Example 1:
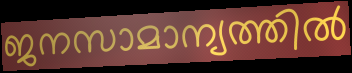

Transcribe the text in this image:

ജനസാമാന്യത്തിൽ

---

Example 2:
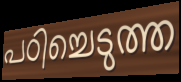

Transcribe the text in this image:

പഠിച്ചെടുത്ത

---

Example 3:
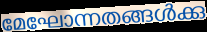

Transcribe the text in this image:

മേഘോന്നതങ്ങൾക്കു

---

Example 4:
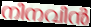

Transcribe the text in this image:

നിനവിൻ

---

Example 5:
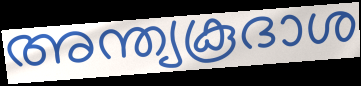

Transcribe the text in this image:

അന്ത്യകൂദാശ